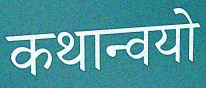
कथान्वयो